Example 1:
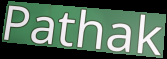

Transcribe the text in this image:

Pathak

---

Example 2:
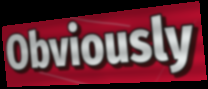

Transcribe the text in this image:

Obviously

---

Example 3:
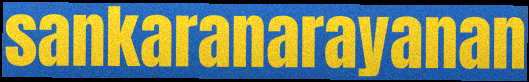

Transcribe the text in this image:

sankaranarayanan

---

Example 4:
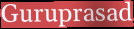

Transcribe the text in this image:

Guruprasad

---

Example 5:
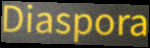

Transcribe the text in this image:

Diaspora